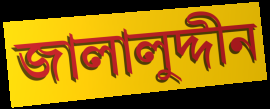
জালালুদ্দীন